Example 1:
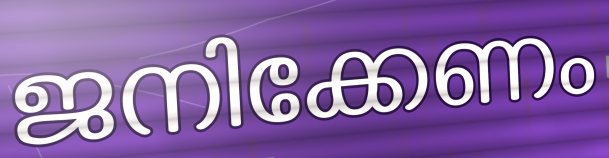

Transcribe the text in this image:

ജനിക്കേണം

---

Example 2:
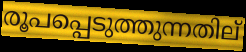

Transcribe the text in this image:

രൂപപ്പെടുത്തുന്നതില്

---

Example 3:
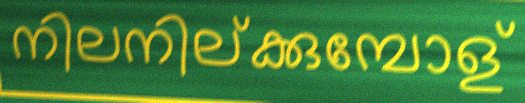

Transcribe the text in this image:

നിലനില്ക്കുമ്പോള്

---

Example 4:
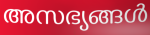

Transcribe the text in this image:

അസഭ്യങ്ങൾ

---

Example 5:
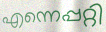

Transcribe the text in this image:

എന്നെപ്പറ്റി